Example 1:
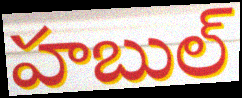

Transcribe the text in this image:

హబుల్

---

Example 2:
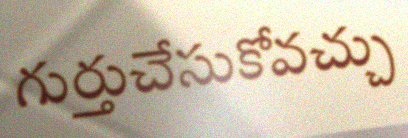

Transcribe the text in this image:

గుర్తుచేసుకోవచ్చు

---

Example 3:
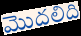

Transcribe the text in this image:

మొదలిది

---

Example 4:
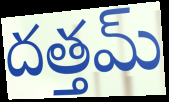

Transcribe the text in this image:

దత్తమ్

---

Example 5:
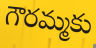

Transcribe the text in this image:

గౌరమ్మకు